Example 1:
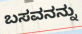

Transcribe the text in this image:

ಬಸವನನ್ನು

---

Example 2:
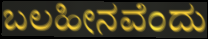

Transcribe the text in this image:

ಬಲಹೀನವೆಂದು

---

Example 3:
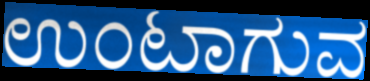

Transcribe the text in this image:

ಉಂಟಾಗುವ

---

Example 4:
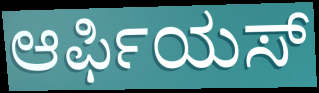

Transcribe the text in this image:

ಆರ್ಫಿಯಸ್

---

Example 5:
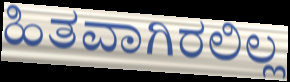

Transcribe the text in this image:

ಹಿತವಾಗಿರಲಿಲ್ಲ